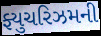
ફ્યુચરિઝમની